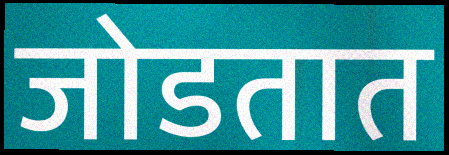
जोडतात